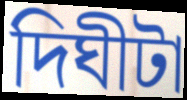
দিঘীটা